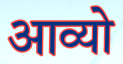
आव्यो